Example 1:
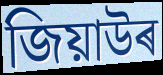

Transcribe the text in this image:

জিয়াউৰ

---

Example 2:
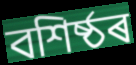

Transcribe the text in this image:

বশিষ্ঠৰ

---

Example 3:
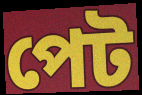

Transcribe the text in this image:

পেট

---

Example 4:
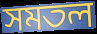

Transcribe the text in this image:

সমতল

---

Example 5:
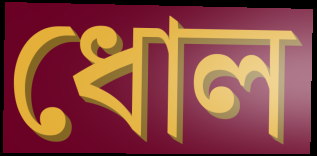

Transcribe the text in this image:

ধোল